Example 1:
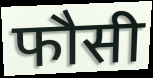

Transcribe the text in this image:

फौसी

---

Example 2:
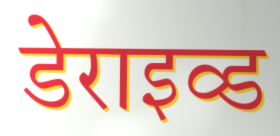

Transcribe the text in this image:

डेराइव्ड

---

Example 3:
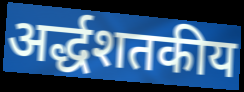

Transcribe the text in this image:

अर्द्धशतकीय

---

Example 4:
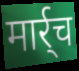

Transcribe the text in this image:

मार्र्च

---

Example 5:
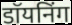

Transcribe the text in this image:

डॉयनिंग